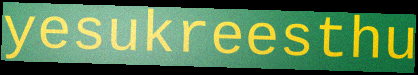
yesukreesthu